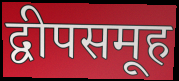
द्वीपसमूह